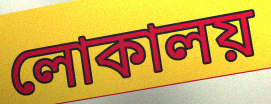
লোকালয়